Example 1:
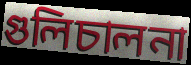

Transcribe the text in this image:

গুলিচালনা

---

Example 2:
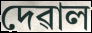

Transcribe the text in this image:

দেৱাল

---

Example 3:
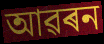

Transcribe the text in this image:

আৱৰন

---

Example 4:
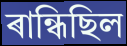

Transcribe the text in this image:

ৰান্ধিছিল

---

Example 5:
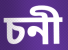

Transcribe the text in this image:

চনী